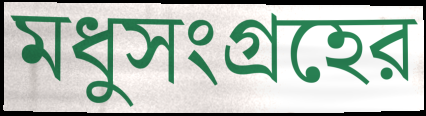
মধুসংগ্রহের